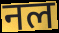
नल